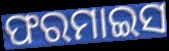
ଫରମାଇସ